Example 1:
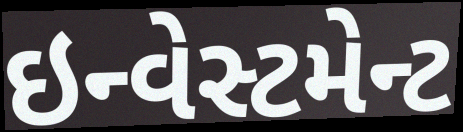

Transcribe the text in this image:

ઇન્વેસ્ટમેન્ટ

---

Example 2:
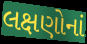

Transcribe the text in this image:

લક્ષણોનાં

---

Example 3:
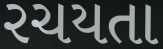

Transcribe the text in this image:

રચયતા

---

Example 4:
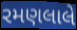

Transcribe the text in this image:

રમણલાલે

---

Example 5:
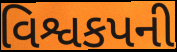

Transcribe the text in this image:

વિશ્વકપની